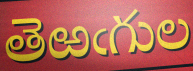
తెఱఁగుల